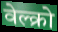
वेल्क्रो